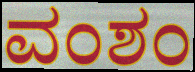
ವಂಶಂ